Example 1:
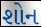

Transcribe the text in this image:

શોન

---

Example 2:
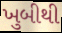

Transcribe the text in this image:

ખુબીથી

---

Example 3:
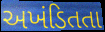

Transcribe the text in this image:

અખંડિતતા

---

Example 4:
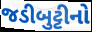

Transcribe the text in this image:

જડીબુટ્ટીનો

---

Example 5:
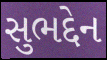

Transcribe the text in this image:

સુભદ્દેન